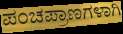
ಪಂಚಪ್ರಾಣಗಳಾಗಿ